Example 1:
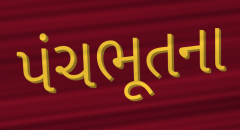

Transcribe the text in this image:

પંચભૂતના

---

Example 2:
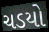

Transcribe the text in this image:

ચડયો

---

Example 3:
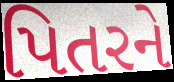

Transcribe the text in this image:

પિતરને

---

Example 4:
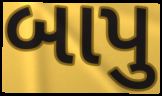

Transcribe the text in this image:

બાપુ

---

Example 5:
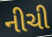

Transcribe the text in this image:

નીચી